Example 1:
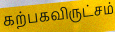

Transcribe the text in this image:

கற்பகவிருட்சம்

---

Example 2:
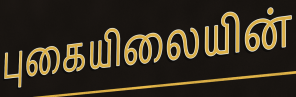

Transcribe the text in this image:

புகையிலையின்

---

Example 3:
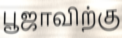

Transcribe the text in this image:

பூஜாவிற்கு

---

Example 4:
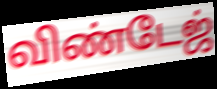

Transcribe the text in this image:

விண்டேஜ்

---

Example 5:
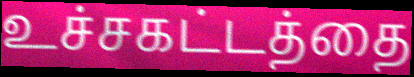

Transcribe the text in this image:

உச்சகட்டத்தை